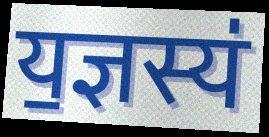
य॒ज्ञस्य॑